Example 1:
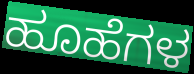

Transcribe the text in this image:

ಹೂಹೆಗಳ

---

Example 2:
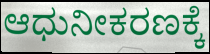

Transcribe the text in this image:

ಆಧುನೀಕರಣಕ್ಕೆ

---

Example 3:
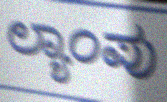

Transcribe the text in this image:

ಲ್ಯಾಂಪು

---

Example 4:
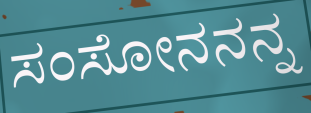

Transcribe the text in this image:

ಸಂಸೋನನನ್ನ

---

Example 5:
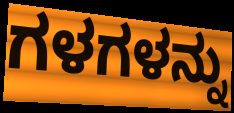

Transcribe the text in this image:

ಗಳಗಳನ್ನು